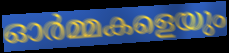
ഓർമ്മകളെയും